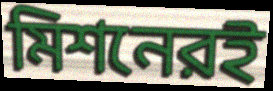
মিশনেরই